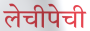
लेचीपेची